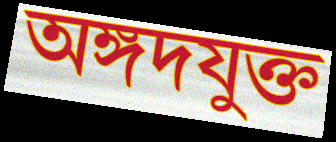
অঙ্গদযুক্ত